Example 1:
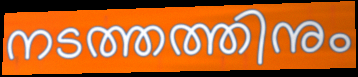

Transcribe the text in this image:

നടത്തത്തിനും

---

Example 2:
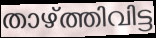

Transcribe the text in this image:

താഴ്ത്തിവിട്ട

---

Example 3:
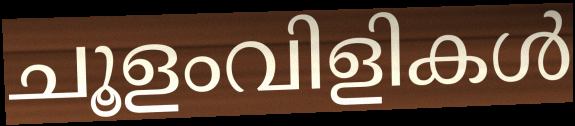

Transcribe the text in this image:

ചൂളംവിളികൾ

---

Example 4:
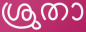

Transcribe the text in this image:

ശ്രുതാ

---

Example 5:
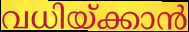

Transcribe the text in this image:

വധിയ്ക്കാൻ